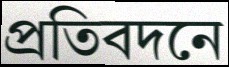
প্রতিবদনে